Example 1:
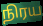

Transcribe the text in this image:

நிரய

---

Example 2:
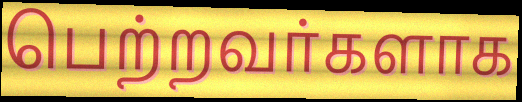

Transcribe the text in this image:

பெற்றவர்களாக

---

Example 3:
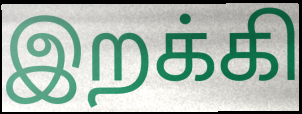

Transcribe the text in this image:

இறக்கி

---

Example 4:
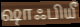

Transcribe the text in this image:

ஷாஃபியீ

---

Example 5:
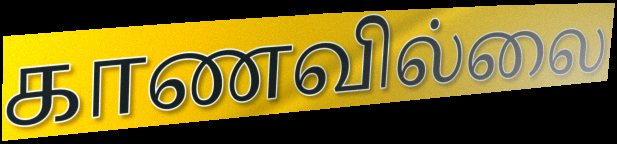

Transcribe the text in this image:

காணவில்லை